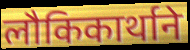
लौकिकार्थाने